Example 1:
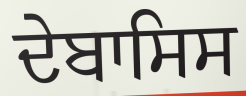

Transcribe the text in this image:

ਦੇਬਾਸਿਸ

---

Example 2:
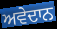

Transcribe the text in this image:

ਅਵੇਦਾਨ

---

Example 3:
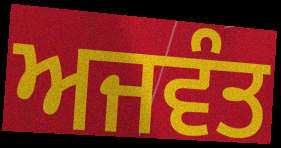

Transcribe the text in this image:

ਅਜਵੰਤ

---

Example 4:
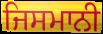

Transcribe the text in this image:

ਜਿਸਮਾਨੀ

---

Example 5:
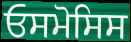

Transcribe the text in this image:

ਓਸਮੋਸਿਸ